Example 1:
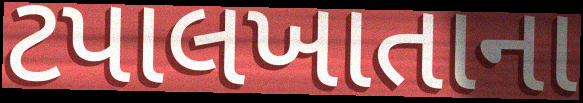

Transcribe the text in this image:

ટપાલખાતાના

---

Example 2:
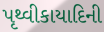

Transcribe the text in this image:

પૃથ્વીકાયાદિની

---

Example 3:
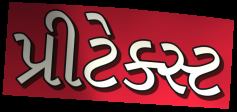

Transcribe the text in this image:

પ્રીટેક્સ્ટ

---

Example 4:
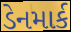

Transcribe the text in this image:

ડેનમાર્ક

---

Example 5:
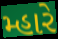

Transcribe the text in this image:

મ્હારે